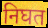
निघत